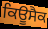
ਕਿਊਸੈਕ